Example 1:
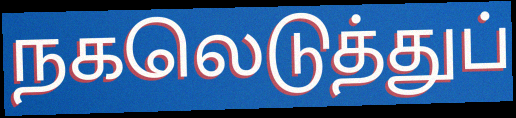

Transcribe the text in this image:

நகலெடுத்துப்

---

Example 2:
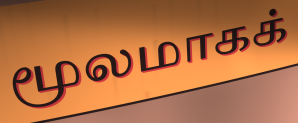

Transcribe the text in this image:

மூலமாகக்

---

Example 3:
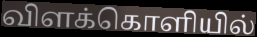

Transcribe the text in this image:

விளக்கொளியில்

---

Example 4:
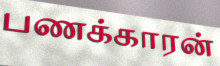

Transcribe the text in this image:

பணக்காரன்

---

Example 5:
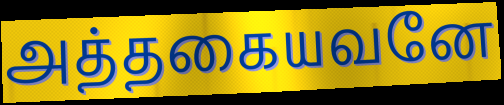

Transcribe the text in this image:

அத்தகையவனே